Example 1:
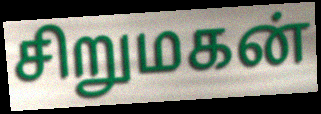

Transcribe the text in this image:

சிறுமகன்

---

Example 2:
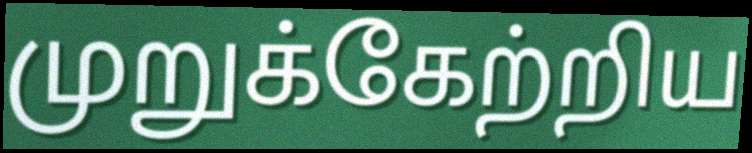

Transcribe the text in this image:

முறுக்கேற்றிய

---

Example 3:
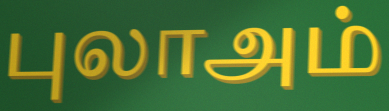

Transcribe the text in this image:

புலாஅம்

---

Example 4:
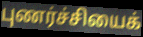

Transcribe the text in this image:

புணர்ச்சியைக்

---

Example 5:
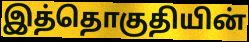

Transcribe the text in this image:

இத்தொகுதியின்